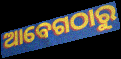
ଆବେଗଠାରୁ